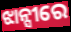
ଝାନ୍ସୀରେ